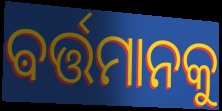
ଵର୍ତ୍ତମାନକୁ